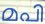
മപി